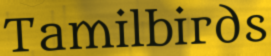
Tamilbirds